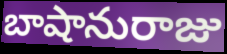
బాషానురాజు